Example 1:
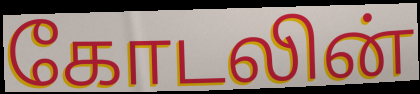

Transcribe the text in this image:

கோடலின்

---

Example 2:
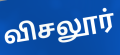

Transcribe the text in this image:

விசலூர்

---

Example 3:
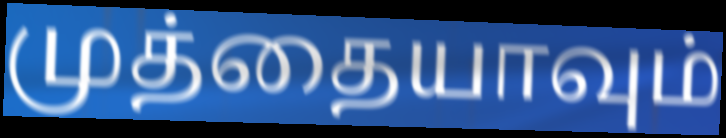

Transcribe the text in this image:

முத்தையாவும்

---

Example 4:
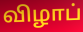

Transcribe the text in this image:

விழாப்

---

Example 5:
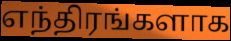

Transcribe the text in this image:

எந்திரங்களாக